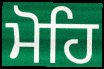
ਮੋਹਿ